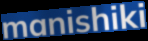
manishiki